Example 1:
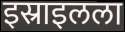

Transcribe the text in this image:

इस्राइलला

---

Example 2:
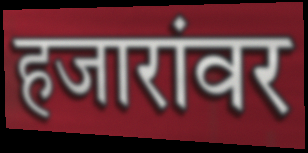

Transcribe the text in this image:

हजारांवर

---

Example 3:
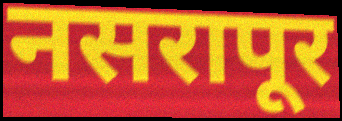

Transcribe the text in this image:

नसरापूर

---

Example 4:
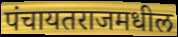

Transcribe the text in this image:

पंचायतराजमधील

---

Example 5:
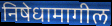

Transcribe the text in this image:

निषेधामागील